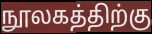
நூலகத்திற்கு